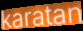
karatan